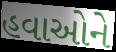
હવાઓને